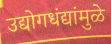
उद्योगधंद्यांमुळे